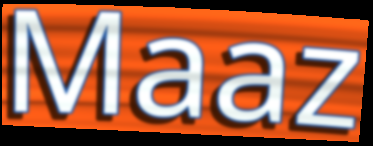
Maaz